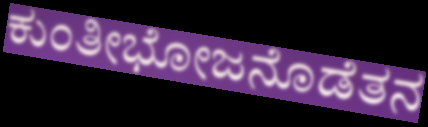
ಕುಂತೀಭೋಜನೊಡೆತನ